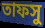
তাফসু